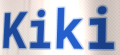
Kiki